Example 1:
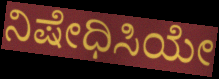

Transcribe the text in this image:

ನಿಷೇಧಿಸಿಯೇ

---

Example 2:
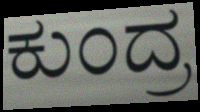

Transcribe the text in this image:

ಕುಂದ್ರ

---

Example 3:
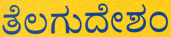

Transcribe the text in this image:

ತೆಲಗುದೇಶಂ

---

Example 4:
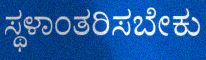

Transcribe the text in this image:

ಸ್ಥಳಾಂತರಿಸಬೇಕು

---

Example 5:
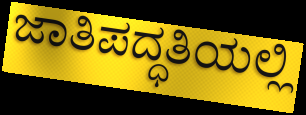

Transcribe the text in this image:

ಜಾತಿಪದ್ಧತಿಯಲ್ಲಿ